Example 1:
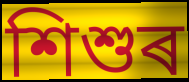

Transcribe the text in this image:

শিশুৰ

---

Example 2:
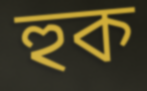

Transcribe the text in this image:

হুক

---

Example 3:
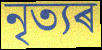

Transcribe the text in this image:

নৃত্যৰ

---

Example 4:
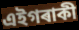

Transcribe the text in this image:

এইগৰাকী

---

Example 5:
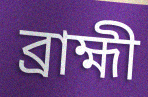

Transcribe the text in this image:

ব্ৰাহ্মী